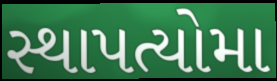
સ્થાપત્યોમા